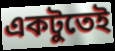
একটুতেই